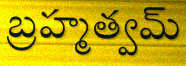
బ్రహ్మత్వమ్